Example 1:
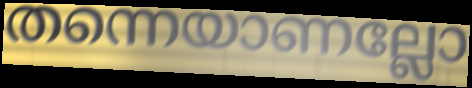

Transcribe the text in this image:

തന്നെയാണല്ലോ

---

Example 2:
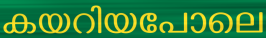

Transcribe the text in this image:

കയറിയപോലെ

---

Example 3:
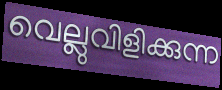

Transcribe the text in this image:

വെല്ലുവിളിക്കുന്ന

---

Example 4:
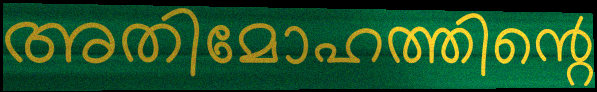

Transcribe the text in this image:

അതിമോഹത്തിന്റെ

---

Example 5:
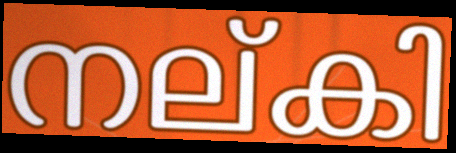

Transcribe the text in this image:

നല്‌കി